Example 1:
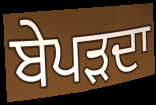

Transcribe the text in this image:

ਬੇਪੜਦਾ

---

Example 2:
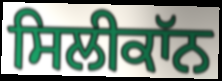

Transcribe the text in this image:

ਸਿਲੀਕਾੱਨ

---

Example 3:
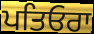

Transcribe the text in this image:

ਪਤਿਓਰਾ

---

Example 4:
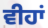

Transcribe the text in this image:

ਵੀਹਾਂ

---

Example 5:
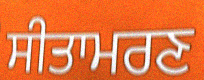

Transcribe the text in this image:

ਸੀਤਾਮਰਣ